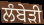
ਲੰਬੇੜੀ